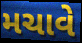
મચાવે